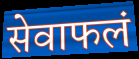
सेवाफलं